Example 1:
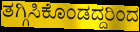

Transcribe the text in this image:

ತಗ್ಗಿಸಿಕೊಂಡದ್ದರಿಂದ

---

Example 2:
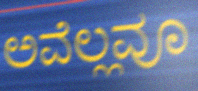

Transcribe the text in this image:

ಅವೆಲ್ಲವೂ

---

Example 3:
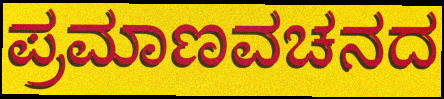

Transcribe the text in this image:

ಪ್ರಮಾಣವಚನದ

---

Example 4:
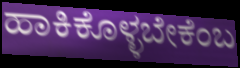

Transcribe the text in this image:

ಹಾಕಿಕೊಳ್ಳಬೇಕೆಂಬ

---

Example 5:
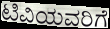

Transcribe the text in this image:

ಟಿವಿಯವರಿಗೆ